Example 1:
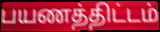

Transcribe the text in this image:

பயணத்திட்டம்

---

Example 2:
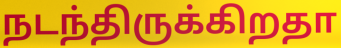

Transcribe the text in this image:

நடந்திருக்கிறதா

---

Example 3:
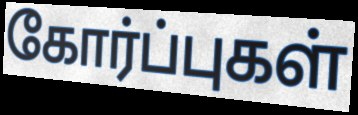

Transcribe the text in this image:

கோர்ப்புகள்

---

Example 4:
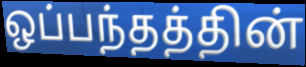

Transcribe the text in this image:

ஒப்பந்தத்தின்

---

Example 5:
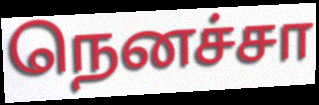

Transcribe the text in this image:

நெனச்சா